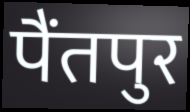
पैंतपुर